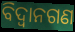
ବିଦ୍ଵାନଗଣ